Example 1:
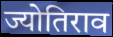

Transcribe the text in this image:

ज्‍योतिराव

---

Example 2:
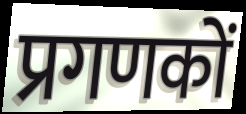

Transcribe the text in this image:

प्रगणकों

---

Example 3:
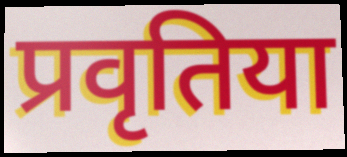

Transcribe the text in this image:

प्रवृतिया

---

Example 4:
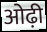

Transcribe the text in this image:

ओढ़ी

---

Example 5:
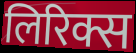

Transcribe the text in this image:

लिरिक्स